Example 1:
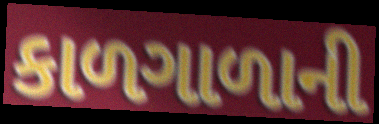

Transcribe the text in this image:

કાળગાળાની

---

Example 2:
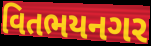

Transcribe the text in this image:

વિતભયનગર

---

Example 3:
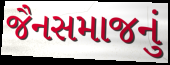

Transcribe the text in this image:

જૈનસમાજનું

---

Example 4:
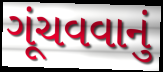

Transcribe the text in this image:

ગૂંચવવાનું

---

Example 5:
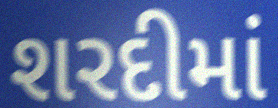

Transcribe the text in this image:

શરદીમાં